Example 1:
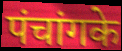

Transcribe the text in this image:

पंचांगके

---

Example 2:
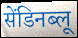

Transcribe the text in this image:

सेंडिनब्लू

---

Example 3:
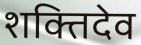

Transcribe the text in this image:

शक्तिदेव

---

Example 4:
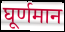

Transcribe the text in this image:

घूर्णमान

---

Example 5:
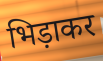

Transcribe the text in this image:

भिड़ाकर